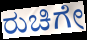
ರುಚಿಗೇ